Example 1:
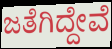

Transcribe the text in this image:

ಜತೆಗಿದ್ದೇವೆ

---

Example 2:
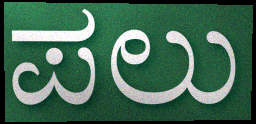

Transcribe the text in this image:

ಪಲು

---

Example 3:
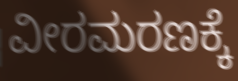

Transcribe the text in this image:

ವೀರಮರಣಕ್ಕೆ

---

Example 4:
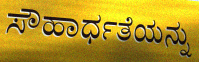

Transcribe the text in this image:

ಸೌಹಾರ್ಧತೆಯನ್ನು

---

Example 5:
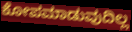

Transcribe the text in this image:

ಕೋಪಮಾಡುವುದಿಲ್ಲ